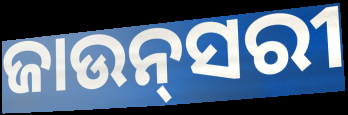
ଜାଉନ୍‌ସରୀ